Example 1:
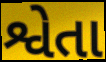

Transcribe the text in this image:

શ્વેતા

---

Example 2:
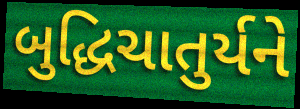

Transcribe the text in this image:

બુદ્ધિચાતુર્યને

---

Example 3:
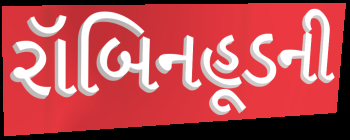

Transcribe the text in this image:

રૉબિનહૂડની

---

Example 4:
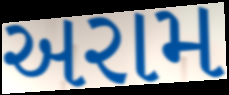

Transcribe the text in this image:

અરામ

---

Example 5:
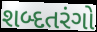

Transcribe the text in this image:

શબ્દતરંગો